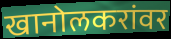
खानोलकरांवर